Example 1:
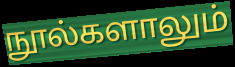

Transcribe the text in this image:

நூல்களாலும்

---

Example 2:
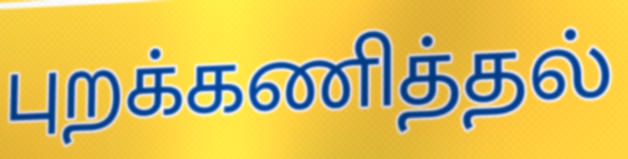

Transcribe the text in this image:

புறக்கணித்தல்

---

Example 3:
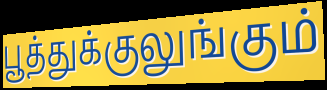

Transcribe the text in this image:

பூத்துக்குலுங்கும்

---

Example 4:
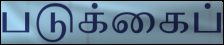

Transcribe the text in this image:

படுக்கைப்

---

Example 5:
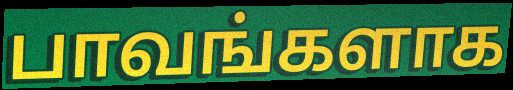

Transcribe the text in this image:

பாவங்களாக